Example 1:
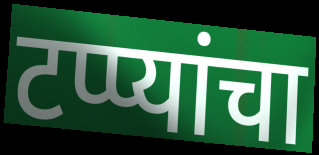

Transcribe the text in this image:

टप्प्यांचा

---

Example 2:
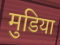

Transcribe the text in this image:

मुडिया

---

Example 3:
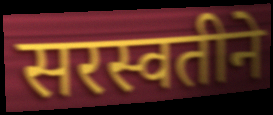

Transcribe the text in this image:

सरस्वतीने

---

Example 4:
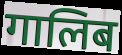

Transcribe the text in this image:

गालिब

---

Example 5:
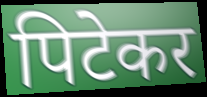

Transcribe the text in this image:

पिटेकर